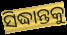
ସିଦ୍ଧାନ୍ତକୁ